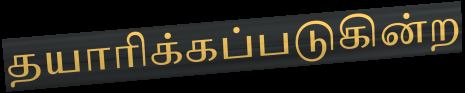
தயாரிக்கப்படுகின்ற